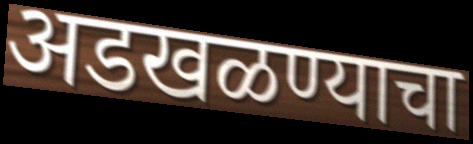
अडखळण्याचा